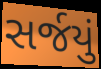
સર્જયું